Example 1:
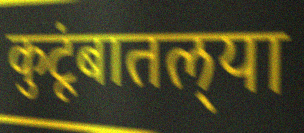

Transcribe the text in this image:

कुटूंबातल्या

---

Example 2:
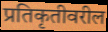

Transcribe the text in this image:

प्रतिकृतीवरील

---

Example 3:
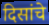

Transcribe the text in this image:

दिसांचे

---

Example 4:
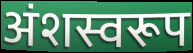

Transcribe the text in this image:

अंशस्वरूप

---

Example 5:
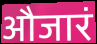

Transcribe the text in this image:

औजारं